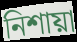
নিশায়া